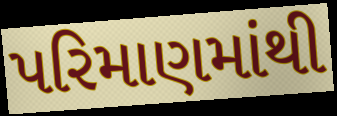
પરિમાણમાંથી